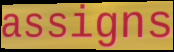
assigns